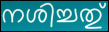
നശിച്ചതു്